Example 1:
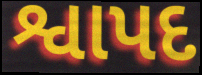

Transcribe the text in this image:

શ્વાપદ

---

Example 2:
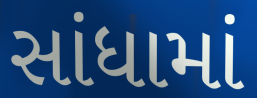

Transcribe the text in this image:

સાંધામાં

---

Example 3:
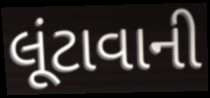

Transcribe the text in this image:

લૂંટાવાની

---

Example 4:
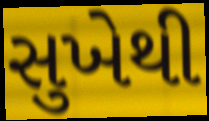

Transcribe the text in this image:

સુખેથી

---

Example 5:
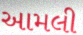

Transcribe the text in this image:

આમલી